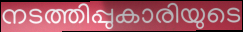
നടത്തിപ്പുകാരിയുടെ